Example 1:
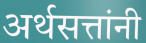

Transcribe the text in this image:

अर्थसत्तांनी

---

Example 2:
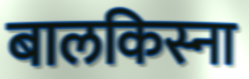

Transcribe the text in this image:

बालकिस्ना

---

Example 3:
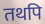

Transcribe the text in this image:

तथपि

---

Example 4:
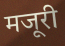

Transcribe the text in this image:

मजूरी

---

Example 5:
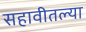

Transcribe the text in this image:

सहावीतल्या